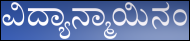
ವಿದ್ಯಾನ್ಮಾಯಿನಂ